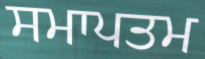
ਸਮਾਪਤਮ